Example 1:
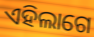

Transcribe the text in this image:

ଏହିଲାଗେ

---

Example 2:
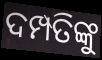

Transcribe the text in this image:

ଦମ୍ପତିଙ୍କୁ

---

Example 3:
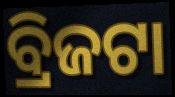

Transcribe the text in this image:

ବ୍ରିଜଟା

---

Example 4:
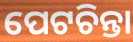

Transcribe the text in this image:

ପେଟଚିନ୍ତା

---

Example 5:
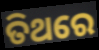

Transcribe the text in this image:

ତିଥରେ